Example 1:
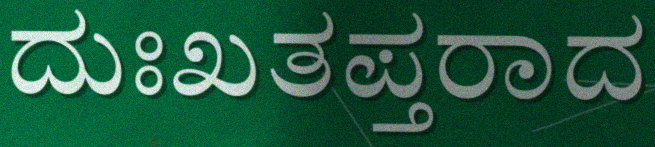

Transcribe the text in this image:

ದುಃಖತಪ್ತರಾದ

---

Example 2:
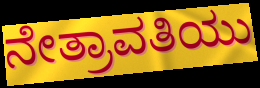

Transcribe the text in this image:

ನೇತ್ರಾವತಿಯು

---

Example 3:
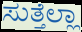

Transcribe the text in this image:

ಸುತ್ತೆಲ್ಲಾ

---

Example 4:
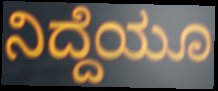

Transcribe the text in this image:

ನಿದ್ದೆಯೂ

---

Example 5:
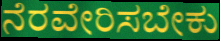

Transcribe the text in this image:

ನೆರವೇರಿಸಬೇಕು